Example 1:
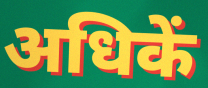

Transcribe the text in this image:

अधिकें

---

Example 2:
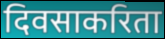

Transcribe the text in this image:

दिवसाकरिता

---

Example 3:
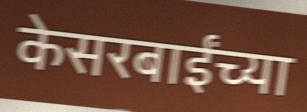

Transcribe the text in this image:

केसरबाईंच्या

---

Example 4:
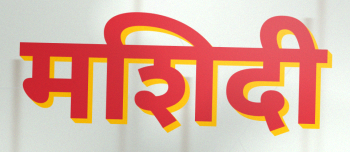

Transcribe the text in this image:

मशिदी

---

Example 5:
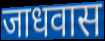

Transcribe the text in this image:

जाधवास